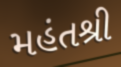
મહંતશ્રી